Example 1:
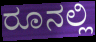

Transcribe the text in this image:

ರೂನಲ್ಲಿ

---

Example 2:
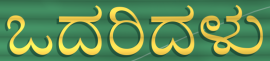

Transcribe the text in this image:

ಒದರಿದಳು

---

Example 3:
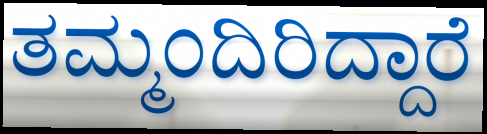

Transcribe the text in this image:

ತಮ್ಮಂದಿರಿದ್ದಾರೆ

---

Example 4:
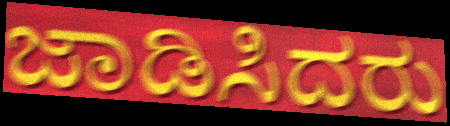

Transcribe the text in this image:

ಜಾಡಿಸಿದರು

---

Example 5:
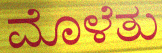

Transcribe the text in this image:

ಮೊಳೆತು